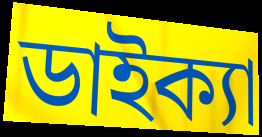
ডাইক্যা